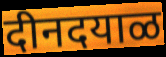
दीनदयाळ